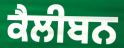
ਕੈਲੀਬਨ